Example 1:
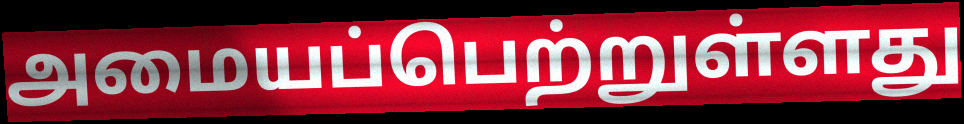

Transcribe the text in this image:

அமையப்பெற்றுள்ளது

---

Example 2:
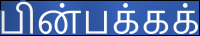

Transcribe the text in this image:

பின்பக்கக்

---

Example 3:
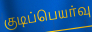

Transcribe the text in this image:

குடிப்பெயர்வு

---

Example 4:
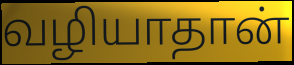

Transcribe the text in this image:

வழியாதான்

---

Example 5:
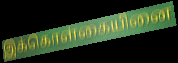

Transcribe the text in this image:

இக்கொள்கையினை